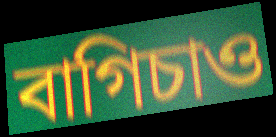
বাগিচাও